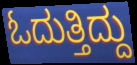
ಓದುತ್ತಿದ್ದು